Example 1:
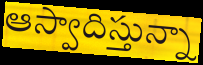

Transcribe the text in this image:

ఆస్వాదిస్తున్నా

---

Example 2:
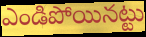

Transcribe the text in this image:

ఎండిపోయినట్టు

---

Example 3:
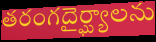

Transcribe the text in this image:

తరంగదైర్ఘ్యాలను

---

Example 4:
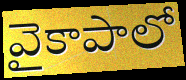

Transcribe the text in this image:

వైకాపాలో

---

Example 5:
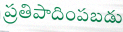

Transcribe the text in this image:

ప్రతిపాదింపబడు